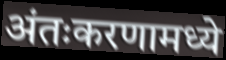
अंतःकरणामध्ये